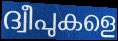
ദ്വീപുകളെ